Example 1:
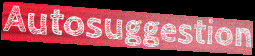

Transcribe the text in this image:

Autosuggestion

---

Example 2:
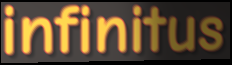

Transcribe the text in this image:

infinitus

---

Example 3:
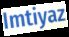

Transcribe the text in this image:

Imtiyaz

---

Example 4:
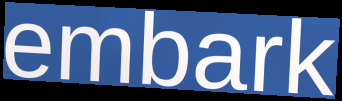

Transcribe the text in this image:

embark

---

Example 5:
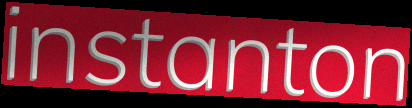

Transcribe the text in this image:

instanton